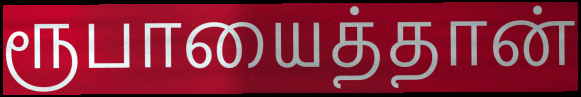
ரூபாயைத்தான்